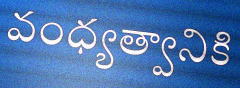
వంధ్యత్వానికి